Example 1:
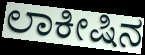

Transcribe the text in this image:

ಲಾಕೀಷಿನ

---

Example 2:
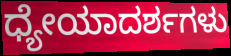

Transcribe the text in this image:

ಧ್ಯೇಯಾದರ್ಶಗಳು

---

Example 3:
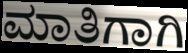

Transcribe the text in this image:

ಮಾತಿಗಾಗಿ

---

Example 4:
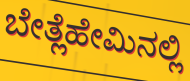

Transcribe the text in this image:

ಬೇತ್ಲೆಹೇಮಿನಲ್ಲಿ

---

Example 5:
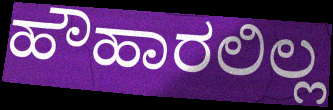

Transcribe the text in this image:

ಹೌಹಾರಲಿಲ್ಲ